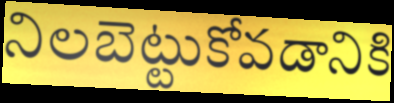
నిలబెట్టుకోవడానికి